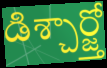
డిశ్చార్జ్తో